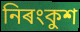
নিৰংকুশ